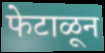
फेटाळून